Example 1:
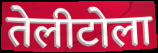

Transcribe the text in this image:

तेलीटोला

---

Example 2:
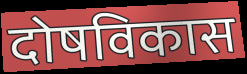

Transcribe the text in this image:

दोषविकास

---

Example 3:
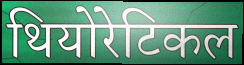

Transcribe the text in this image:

थियोरेटिकल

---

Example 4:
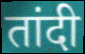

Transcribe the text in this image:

तांदी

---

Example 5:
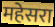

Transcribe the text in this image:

महेसरा